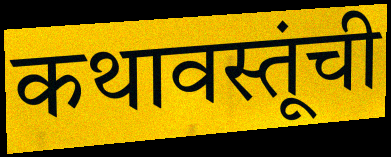
कथावस्तूंची